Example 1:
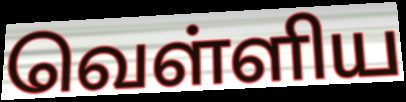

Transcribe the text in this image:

வெள்ளிய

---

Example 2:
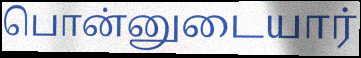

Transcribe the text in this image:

பொன்னுடையார்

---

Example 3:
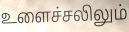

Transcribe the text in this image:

உளைச்சலிலும்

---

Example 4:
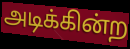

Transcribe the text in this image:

அடிக்கின்ற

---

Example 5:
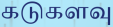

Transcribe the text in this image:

கடுகளவு